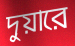
দুয়ারে